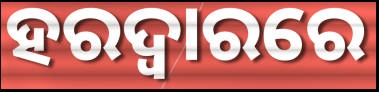
ହରଦ୍ୱାରରେ